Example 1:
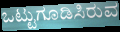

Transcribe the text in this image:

ಒಟ್ಟುಗೂಡಿಸಿರುವ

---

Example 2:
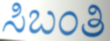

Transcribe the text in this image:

ಸಿಬಂತಿ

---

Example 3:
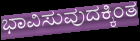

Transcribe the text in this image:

ಭಾವಿಸುವುದಕ್ಕಿಂತ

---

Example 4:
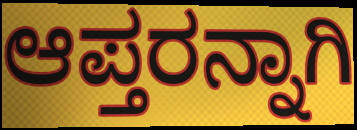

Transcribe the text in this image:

ಆಪ್ತರನ್ನಾಗಿ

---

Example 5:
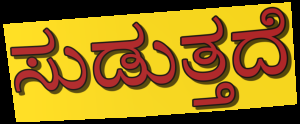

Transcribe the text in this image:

ಸುಡುತ್ತದೆ